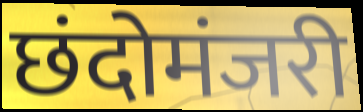
छंदोमंजरी